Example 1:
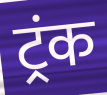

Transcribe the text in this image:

ट्रंक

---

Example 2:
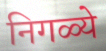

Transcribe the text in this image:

निगळ्ये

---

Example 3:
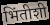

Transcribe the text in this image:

भिंतीशी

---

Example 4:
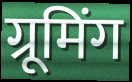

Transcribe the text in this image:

ग्रूमिंग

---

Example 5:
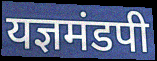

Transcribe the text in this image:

यज्ञमंडपी